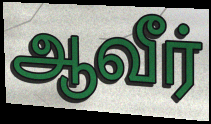
ஆவீர்